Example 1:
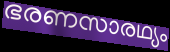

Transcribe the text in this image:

ഭരണസാരഥ്യം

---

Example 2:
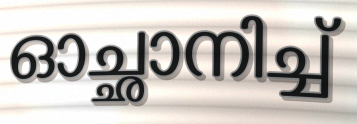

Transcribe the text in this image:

ഓച്ഛാനിച്ച്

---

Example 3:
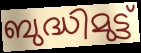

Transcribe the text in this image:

ബുദ്ധിമുട്ട്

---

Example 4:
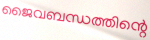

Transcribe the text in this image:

ജൈവബന്ധത്തിന്റെ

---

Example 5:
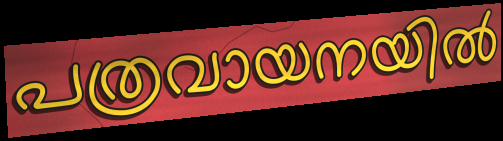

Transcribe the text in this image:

പത്രവായനയിൽ